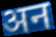
अन